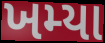
ખમ્યા